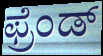
ಫ್ರೆಂಡ್